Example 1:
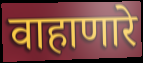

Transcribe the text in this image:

वाहाणारे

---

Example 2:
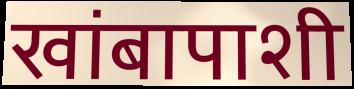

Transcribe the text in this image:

खांबापाशी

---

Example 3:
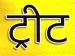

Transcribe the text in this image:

ट्रीट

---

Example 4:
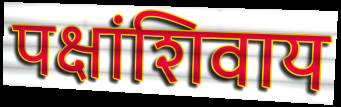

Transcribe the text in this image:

पक्षांशिवाय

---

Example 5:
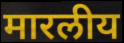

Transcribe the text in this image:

मारलीय